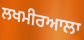
ਲਖਮੀਰਆਲਾ